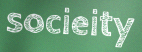
socieity